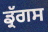
ਡ੍ਰੱਗਸ